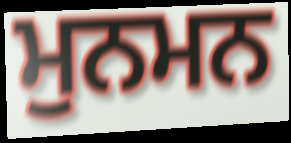
ਮੁਨਮਨ